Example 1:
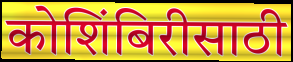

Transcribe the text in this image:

कोशिंबिरीसाठी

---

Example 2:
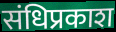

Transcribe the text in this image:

संधिप्रकाश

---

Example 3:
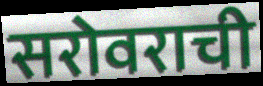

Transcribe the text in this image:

सरोवराची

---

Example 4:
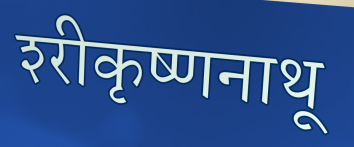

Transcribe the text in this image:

श्रीकृष्णनाथू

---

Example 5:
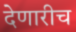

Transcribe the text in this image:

देणारीच